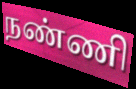
நண்ணி